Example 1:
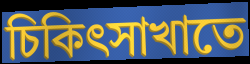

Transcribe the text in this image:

চিকিৎসাখাতে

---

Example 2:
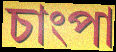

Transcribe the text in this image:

চাংপা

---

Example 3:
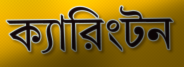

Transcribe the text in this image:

ক্যারিংটন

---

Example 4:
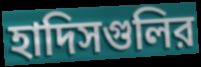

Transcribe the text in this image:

হাদিসগুলির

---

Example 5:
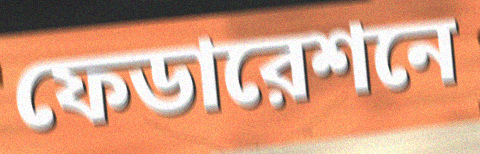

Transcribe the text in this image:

ফেডারেশনে